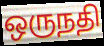
ஒருநதி